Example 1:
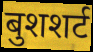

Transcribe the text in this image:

बुशशर्ट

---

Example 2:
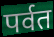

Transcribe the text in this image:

पर्वत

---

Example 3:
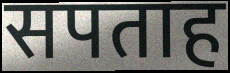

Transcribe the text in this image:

सपताह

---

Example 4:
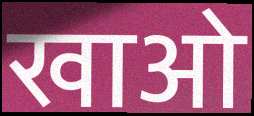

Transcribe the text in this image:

खाओ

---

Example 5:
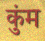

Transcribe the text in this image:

कुंम